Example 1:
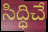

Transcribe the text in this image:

సిద్ధిచే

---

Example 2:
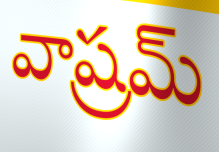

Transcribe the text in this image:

వాష్రమ్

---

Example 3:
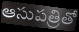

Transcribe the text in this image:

ఆసుపత్రితో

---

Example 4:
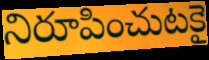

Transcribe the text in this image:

నిరూపించుటకై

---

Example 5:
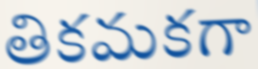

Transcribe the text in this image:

తికమకగా